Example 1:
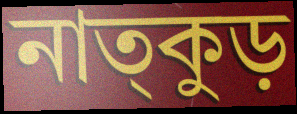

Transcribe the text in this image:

নাত্কুড়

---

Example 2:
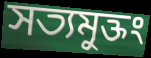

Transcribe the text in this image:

সত্যমুক্তং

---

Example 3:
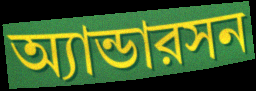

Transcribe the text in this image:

অ্যান্ডারসন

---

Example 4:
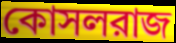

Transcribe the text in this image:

কোসলরাজ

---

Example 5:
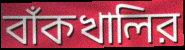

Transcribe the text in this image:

বাঁকখালির